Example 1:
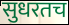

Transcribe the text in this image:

सुधरतच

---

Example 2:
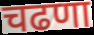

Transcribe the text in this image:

चढणा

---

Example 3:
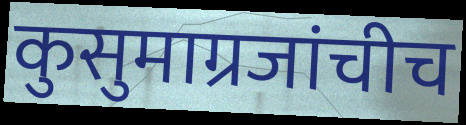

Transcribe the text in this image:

कुसुमाग्रजांचीच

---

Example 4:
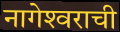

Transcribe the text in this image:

नागेश्‍वराची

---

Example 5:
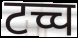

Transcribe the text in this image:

टच्च